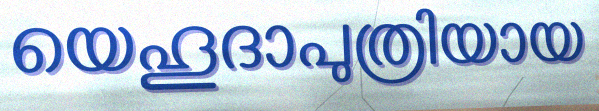
യെഹൂദാപുത്രിയായ